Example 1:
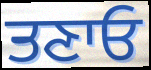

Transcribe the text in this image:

ਤਣਾਓ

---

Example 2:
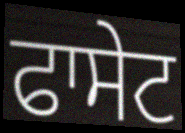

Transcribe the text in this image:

ਫਾਸੇਟ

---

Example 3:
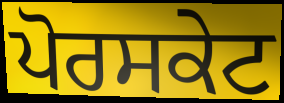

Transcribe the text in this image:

ਪੋਰਸਕੇਟ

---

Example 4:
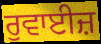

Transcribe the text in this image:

ਰੁਵਾਈਜ਼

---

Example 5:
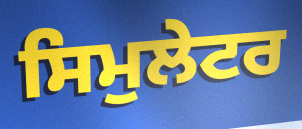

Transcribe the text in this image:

ਸਿਮੁਲੇਟਰ